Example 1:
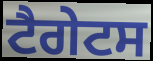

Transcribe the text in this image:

ਟੈਗੇਟਸ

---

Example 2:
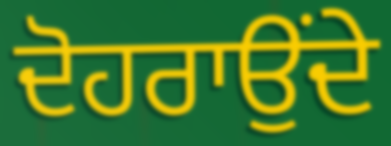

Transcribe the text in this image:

ਦੋਹਰਾਉਂਦੇ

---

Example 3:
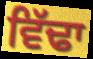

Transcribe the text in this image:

ਵਿੱਢਾ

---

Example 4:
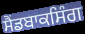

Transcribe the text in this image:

ਸੈਂਡਬਾਕਸਿੰਗ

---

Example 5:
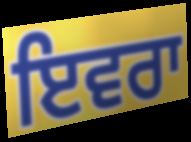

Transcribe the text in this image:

ਇਵਰਾ